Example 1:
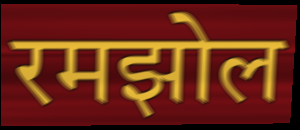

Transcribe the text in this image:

रमझोल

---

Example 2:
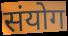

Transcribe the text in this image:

संयोग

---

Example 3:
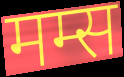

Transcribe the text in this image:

मम्स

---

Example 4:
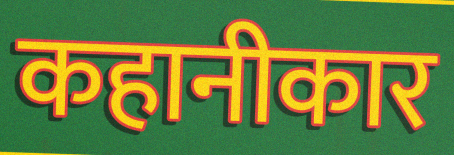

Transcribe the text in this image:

कहानीकार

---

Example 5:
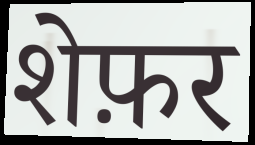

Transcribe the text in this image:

शेफ़र